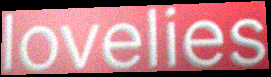
lovelies